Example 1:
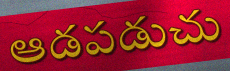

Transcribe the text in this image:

ఆడపడుచు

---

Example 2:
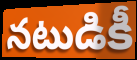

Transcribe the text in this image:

నటుడికీ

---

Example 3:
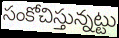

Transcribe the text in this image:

సంకోచిస్తున్నట్టు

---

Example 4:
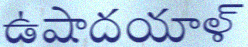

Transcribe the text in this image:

ఉషాదయాళ్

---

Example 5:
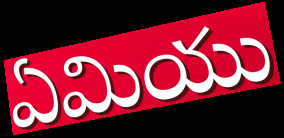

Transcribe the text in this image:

ఏమియు